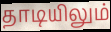
தாடியிலும்